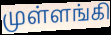
முள்ளங்கி